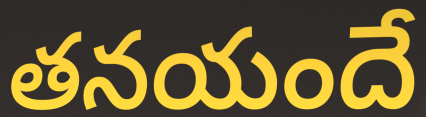
తనయందే